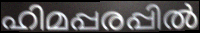
ഹിമപ്പരപ്പിൽ